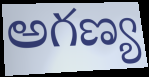
అగణ్య